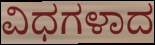
ವಿಧಗಳಾದ